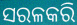
ସରଳକରି